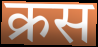
क्रस